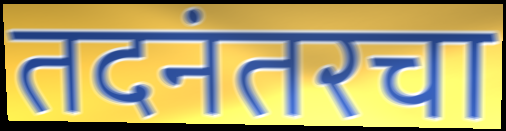
तदनंतरचा